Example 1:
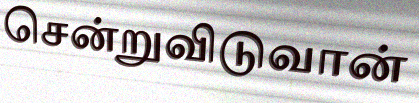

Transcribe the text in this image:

சென்றுவிடுவான்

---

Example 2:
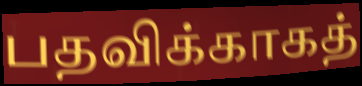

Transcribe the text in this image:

பதவிக்காகத்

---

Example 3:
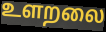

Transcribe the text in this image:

உளறலை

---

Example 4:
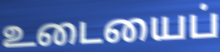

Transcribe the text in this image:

உடையைப்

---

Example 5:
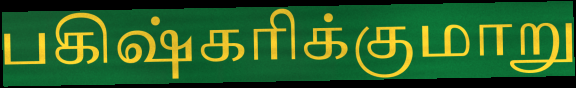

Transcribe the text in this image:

பகிஷ்கரிக்குமாறு